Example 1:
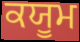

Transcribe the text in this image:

ਕਯੂਮ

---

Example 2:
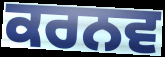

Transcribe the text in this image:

ਕਰਨਵ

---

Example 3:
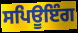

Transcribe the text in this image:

ਸਪਿਊਇੰਗ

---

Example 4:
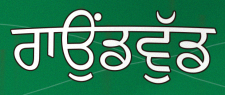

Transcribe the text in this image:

ਰਾਉਂਡਵੁੱਡ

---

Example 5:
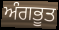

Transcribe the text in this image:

ਅੰਗਭੂਤ